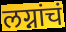
लग्नांचं